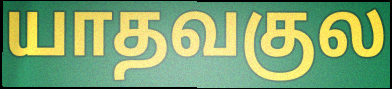
யாதவகுல